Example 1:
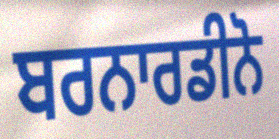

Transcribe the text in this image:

ਬਰਨਾਰਡੀਨੋ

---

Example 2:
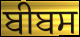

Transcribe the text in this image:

ਬੀਬਸ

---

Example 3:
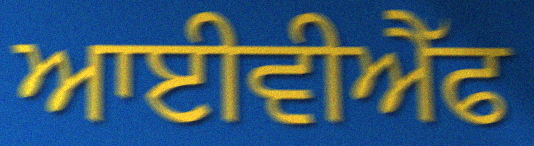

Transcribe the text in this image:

ਆਈਵੀਐੱਫ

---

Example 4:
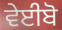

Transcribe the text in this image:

ਵੇਈਬੋ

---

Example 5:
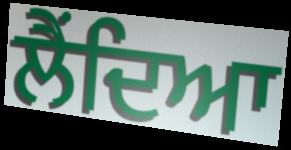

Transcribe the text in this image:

ਲੈਂਦਿਆ